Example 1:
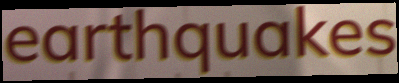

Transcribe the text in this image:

earthquakes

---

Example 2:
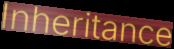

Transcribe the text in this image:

Inheritance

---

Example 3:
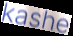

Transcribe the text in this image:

kashe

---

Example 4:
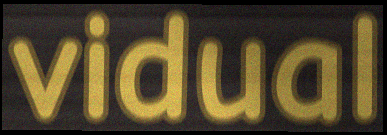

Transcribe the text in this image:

vidual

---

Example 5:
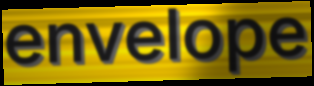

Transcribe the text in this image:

envelope